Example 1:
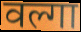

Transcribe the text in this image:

वल्गा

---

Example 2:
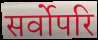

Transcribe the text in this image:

सर्वोपरि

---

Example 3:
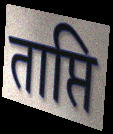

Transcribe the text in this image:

ताप्ति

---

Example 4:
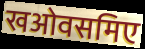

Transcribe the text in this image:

खओवसमिए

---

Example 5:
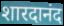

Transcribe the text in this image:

शारदानंद